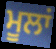
ਮੂਲਾਂ